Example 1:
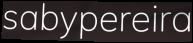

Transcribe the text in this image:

sabypereira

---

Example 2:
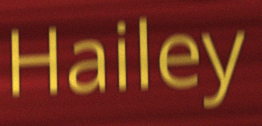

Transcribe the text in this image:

Hailey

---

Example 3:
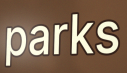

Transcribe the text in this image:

parks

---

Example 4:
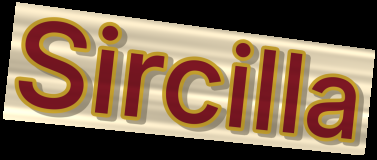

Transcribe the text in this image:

Sircilla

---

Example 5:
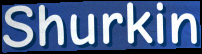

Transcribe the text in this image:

Shurkin